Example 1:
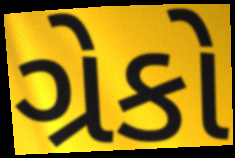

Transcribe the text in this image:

ગ્રેકો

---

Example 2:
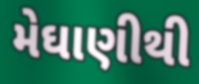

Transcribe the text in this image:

મેઘાણીથી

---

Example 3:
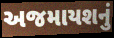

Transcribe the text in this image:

અજમાયશનું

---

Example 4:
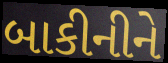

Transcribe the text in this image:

બાકીનીને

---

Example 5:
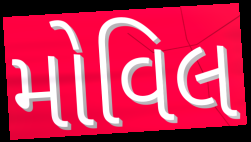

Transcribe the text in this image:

મોવિલ